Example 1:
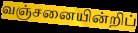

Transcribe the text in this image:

வஞ்சனையின்றிப்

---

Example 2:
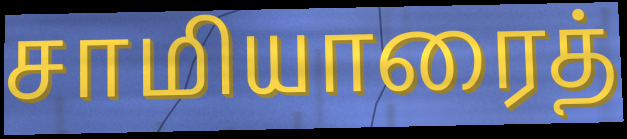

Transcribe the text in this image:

சாமியாரைத்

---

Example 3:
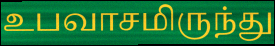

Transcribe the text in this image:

உபவாசமிருந்து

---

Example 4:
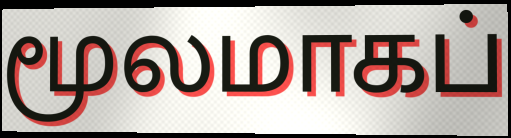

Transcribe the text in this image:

மூலமாகப்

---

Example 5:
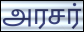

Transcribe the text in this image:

அரசர்